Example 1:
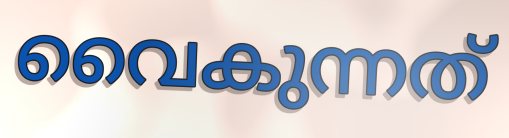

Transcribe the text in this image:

വൈകുന്നത്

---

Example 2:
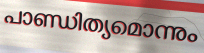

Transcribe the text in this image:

പാണ്ഡിത്യമൊന്നും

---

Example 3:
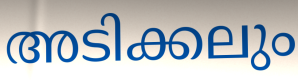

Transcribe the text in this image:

അടിക്കലും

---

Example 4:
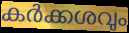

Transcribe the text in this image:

കർക്കശവും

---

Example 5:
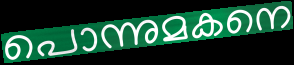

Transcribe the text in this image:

പൊന്നുമകനെ